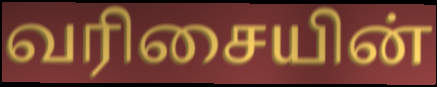
வரிசையின்